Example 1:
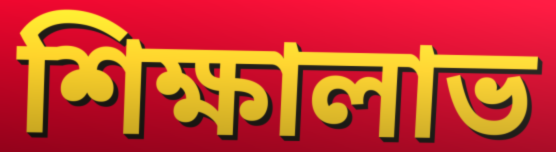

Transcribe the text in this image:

শিক্ষালাভ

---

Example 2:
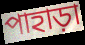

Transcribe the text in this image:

পাহাড়া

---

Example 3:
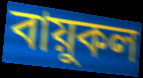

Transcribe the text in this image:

বায়ুকল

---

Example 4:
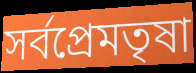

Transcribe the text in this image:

সর্বপ্রেমতৃষা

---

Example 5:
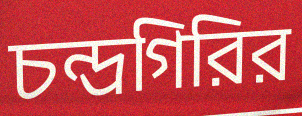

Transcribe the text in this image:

চন্দ্রগিরির